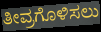
ತೀವ್ರಗೊಳಿಸಲು